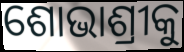
ଶୋଭାଶ୍ରୀକୁ